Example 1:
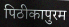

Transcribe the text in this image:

पिठीकापुरम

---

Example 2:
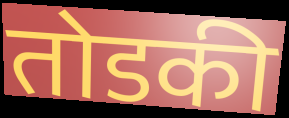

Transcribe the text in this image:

तोडकी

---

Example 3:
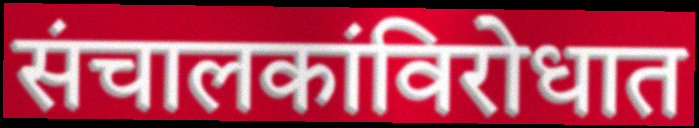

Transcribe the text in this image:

संचालकांविरोधात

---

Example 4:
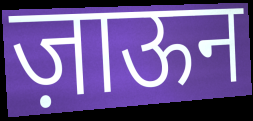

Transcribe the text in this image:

ज़ाऊन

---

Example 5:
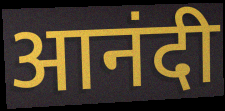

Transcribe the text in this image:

आनंदी